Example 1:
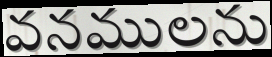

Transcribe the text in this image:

వనములను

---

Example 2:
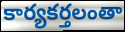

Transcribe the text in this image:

కార్యకర్తలంతా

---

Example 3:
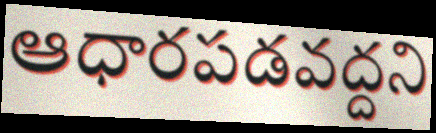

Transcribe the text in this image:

ఆధారపడవద్దని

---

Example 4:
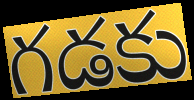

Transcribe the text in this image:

గడకు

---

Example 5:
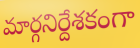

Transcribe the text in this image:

మార్గనిర్దేశకంగా